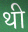
थी